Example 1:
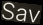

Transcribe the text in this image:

Sav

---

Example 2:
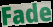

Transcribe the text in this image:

Fade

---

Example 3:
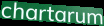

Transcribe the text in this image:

chartarum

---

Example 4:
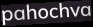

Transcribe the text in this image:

pahochva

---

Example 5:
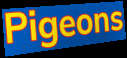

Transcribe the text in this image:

Pigeons